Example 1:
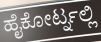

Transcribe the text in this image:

ಹೈಕೋರ್ಟ್ನಲ್ಲಿ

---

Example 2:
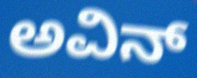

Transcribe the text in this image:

ಅವಿನ್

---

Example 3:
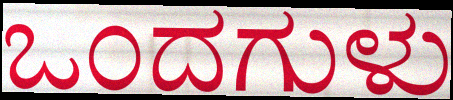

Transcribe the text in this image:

ಒಂದಗುಳು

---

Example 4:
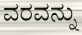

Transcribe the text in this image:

ವರವನ್ನು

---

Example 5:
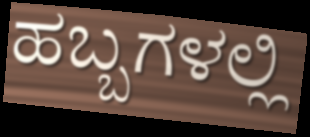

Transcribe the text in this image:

ಹಬ್ಬಗಳಲ್ಲಿ